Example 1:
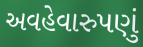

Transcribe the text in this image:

અવહેવારુપણું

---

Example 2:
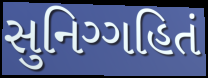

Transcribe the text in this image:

સુનિગ્ગહિતં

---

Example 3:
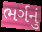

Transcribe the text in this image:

ભર્ગનું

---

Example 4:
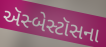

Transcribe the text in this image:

ઍસ્બેસ્ટૉસના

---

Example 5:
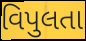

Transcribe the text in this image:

વિપુલતા